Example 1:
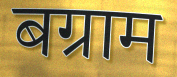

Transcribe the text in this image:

बग्राम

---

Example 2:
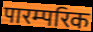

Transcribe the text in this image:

पारम्परिक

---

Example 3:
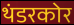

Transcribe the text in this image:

थंडरकोर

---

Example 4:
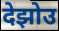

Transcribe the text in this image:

देझोउ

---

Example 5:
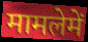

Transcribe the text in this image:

मामलेमें